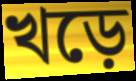
খড়ে